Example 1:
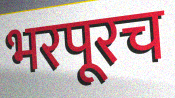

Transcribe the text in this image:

भरपूरच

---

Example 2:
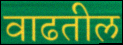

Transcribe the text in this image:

वाढतील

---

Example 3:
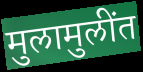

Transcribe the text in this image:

मुलामुलींत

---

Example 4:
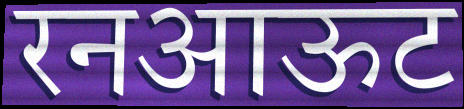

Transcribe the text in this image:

रनआऊट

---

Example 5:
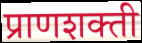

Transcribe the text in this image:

प्राणशक्ती